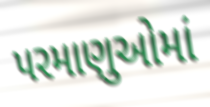
પરમાણુઓમાં